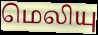
மெலியு